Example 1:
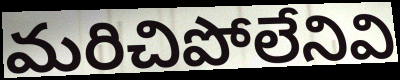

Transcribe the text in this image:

మరిచిపోలేనివి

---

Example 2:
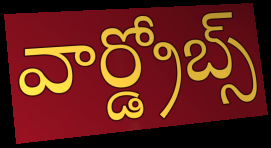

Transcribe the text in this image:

వార్డ్రోబ్స్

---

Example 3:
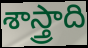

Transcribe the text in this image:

శాస్త్రాది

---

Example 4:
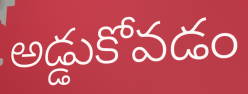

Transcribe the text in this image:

అడ్డుకోవడం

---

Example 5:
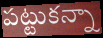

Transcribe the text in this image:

పట్టుకన్నా